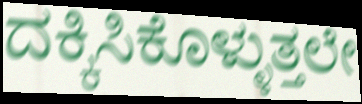
ದಕ್ಕಿಸಿಕೊಳ್ಳುತ್ತಲೇ